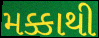
મક્કાથી